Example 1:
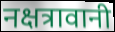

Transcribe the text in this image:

नक्षत्रावानी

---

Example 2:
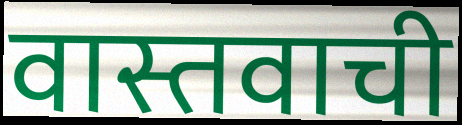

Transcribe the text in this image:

वास्तवाची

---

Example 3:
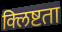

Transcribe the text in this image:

क्‍लिष्टता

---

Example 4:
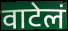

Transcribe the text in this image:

वाटेलं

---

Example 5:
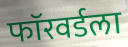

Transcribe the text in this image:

फॉरवर्डला